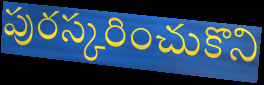
పురస్కరించుకొని